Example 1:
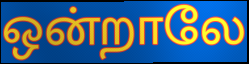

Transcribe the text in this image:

ஒன்றாலே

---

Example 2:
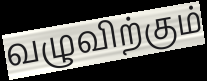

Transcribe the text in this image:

வழுவிற்கும்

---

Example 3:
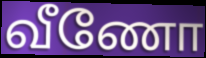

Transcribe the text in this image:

வீணோ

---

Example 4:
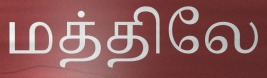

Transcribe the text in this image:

மத்திலே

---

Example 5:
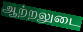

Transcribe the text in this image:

ஆற்றலுடை